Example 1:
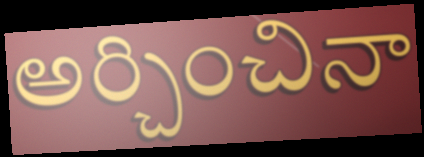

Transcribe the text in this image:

అర్చించినా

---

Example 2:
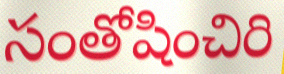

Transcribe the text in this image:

సంతోషించిరి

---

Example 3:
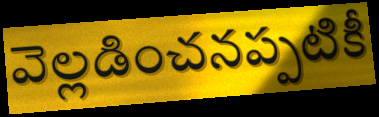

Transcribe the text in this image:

వెల్లడించనప్పటికీ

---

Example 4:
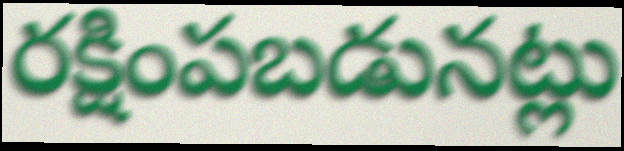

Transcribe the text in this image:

రక్షింపబడునట్లు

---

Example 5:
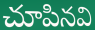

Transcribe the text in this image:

చూపినవి